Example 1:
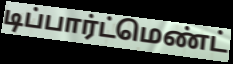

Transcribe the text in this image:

டிப்பார்ட்மெண்ட்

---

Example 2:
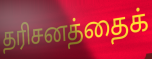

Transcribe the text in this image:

தரிசனத்தைக்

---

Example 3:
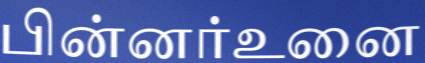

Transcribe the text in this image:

பின்னர்உனை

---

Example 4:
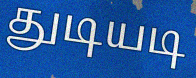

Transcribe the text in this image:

துடியடி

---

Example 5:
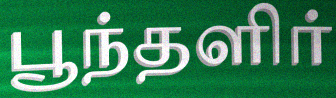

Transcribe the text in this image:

பூந்தளிர்